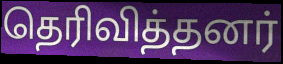
தெரிவித்தனர்